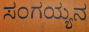
ಸಂಗಯ್ಯನ